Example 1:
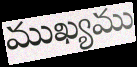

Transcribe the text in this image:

ముఖ్యము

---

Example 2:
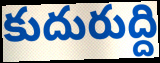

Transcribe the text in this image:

కుదురుద్ది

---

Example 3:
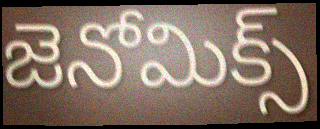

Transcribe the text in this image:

జెనోమిక్స్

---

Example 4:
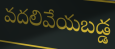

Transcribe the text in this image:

వదలివేయబడ్డ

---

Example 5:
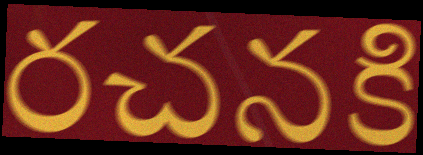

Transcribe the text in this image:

రచనకి